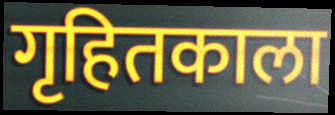
गृहितकाला